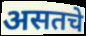
असतचे